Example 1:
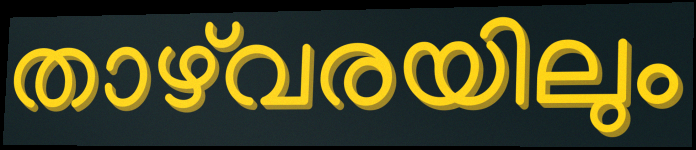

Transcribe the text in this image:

താഴ്‌വരയിലും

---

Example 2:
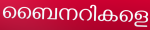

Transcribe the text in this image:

ബൈനറികളെ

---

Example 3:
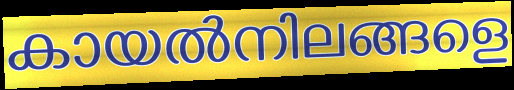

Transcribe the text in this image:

കായൽനിലങ്ങളെ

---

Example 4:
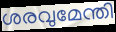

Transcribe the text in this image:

ശരവുമേന്തി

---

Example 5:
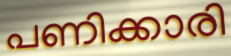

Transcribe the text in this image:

പണിക്കാരി